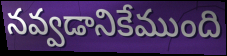
నవ్వడానికేముంది